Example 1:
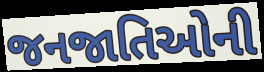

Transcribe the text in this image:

જનજાતિઓની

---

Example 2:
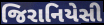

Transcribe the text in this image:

જિરાનિયેસી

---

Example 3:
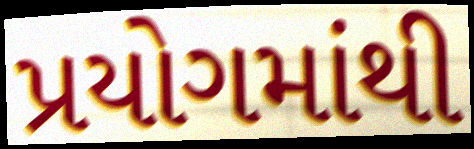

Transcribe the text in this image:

પ્રયોગમાંથી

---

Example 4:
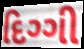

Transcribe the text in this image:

દિગ્ગી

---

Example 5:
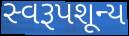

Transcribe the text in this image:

સ્વરૂપશૂન્ય